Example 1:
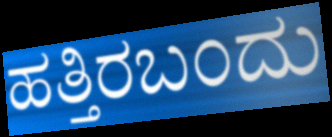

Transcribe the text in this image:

ಹತ್ತಿರಬಂದು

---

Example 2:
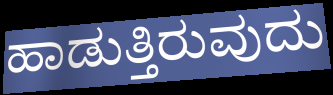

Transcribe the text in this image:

ಹಾಡುತ್ತಿರುವುದು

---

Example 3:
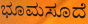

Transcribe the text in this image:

ಭೂಮಸೂದೆ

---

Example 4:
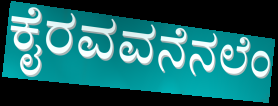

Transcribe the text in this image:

ಕೈರವವನೆನಲೆಂ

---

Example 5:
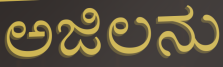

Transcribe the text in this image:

ಅಜಿಲನು